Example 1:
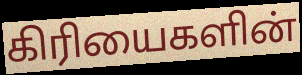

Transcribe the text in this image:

கிரியைகளின்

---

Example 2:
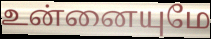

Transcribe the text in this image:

உன்னையுமே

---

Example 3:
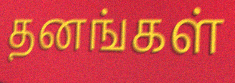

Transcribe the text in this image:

தனங்கள்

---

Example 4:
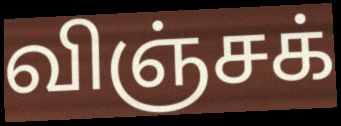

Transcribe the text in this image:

விஞ்சக்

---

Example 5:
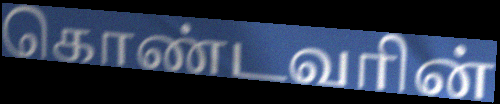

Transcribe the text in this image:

கொண்டவரின்